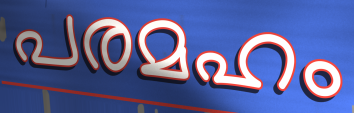
പരമഹം